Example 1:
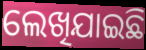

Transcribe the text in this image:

ଲେଖିଯାଇଛି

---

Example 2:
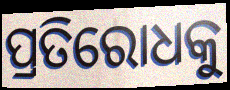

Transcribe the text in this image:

ପ୍ରତିରୋଧକୁ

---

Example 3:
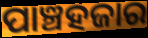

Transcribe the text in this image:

ପାଞ୍ଚହଜାର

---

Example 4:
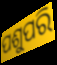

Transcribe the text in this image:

ପଶୁପରି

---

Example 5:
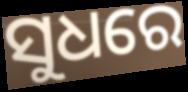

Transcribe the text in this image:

ସୁଧରେ